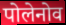
पोलेनोव